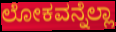
ಲೋಕವನ್ನೆಲ್ಲಾ